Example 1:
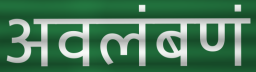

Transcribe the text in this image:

अवलंबणं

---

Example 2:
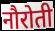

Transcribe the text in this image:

नौरोती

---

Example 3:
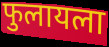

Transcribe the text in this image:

फुलायला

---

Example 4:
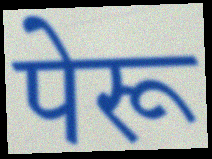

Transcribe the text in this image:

पेरू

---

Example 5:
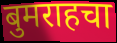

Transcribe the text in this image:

बुमराहचा